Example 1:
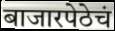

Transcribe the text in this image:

बाजारपेठेचं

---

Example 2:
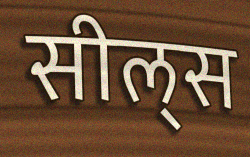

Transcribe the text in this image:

सील्स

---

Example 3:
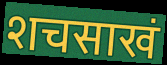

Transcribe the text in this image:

शचसाखं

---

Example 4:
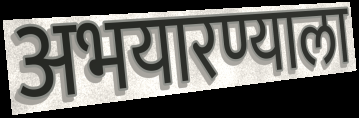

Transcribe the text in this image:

अभयारण्याला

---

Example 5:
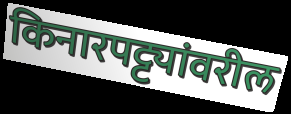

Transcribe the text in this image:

किनारपट्ट्यांवरील